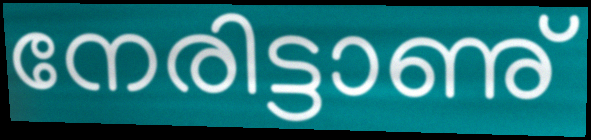
നേരിട്ടാണു്